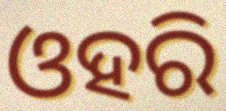
ଓହରି